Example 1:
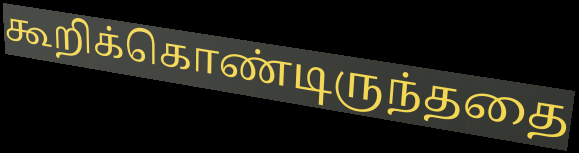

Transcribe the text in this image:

கூறிக்கொண்டிருந்ததை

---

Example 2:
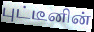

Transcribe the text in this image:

புட்டீனின்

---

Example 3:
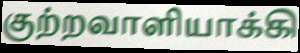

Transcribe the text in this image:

குற்றவாளியாக்கி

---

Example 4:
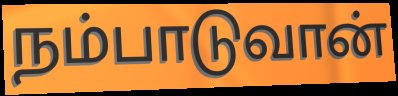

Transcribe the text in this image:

நம்பாடுவான்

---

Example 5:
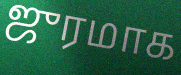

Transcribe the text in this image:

ஜுரமாக